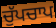
ਚੁੱਪਚਾਪ